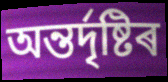
অন্তৰ্দৃষ্টিৰ